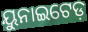
ୟୁନାଇଟେଡ଼